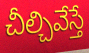
చీల్చివేస్తే